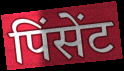
पिंसेंट